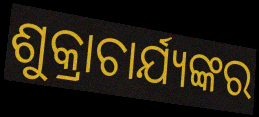
ଶୁକ୍ରାଚାର୍ଯ୍ୟଙ୍କର